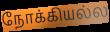
நோக்கியல்ல